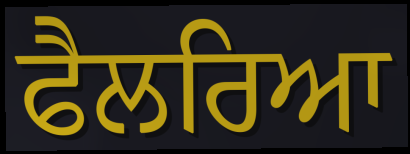
ਫੈਲਰਿਆ